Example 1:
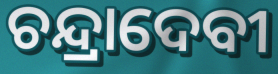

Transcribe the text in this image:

ଚନ୍ଦ୍ରାଦେବୀ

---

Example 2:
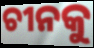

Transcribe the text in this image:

ଚୀନକୁ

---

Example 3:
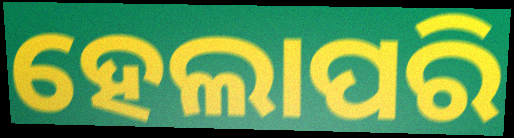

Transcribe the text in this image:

ହେଲାପରି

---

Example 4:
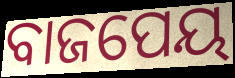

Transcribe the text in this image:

ବାଜପେୟ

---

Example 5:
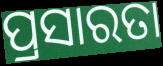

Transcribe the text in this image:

ପ୍ରସାରତା